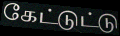
கேட்டுட்டு